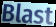
Blast